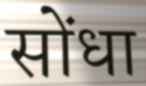
सोंधा